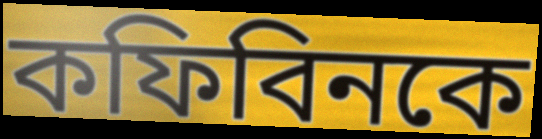
কফিবিনকে